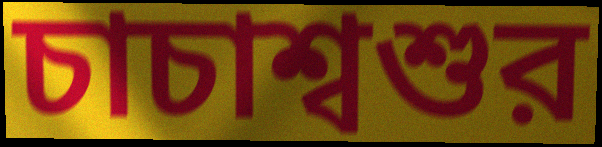
চাচাশ্বশুর